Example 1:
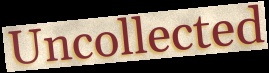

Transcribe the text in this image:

Uncollected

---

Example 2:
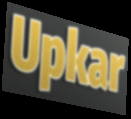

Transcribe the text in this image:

Upkar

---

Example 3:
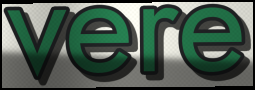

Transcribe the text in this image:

vere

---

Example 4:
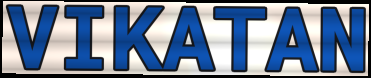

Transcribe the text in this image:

VIKATAN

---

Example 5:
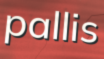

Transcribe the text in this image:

pallis